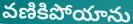
వణికిపోయాను